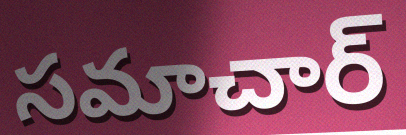
సమాచార్